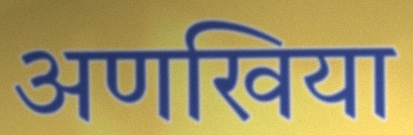
अणखिया